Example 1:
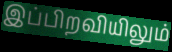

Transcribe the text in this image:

இப்பிறவியிலும்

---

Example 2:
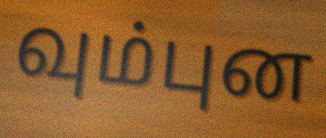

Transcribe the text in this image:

வும்புன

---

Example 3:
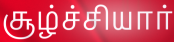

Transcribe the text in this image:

சூழ்ச்சியார்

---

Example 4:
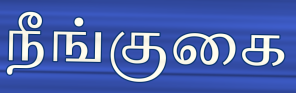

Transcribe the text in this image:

நீங்குகை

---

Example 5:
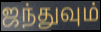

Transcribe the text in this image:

ஜந்துவும்